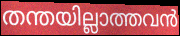
തന്തയില്ലാത്തവൻ